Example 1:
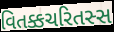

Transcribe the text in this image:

વિતક્કચરિતસ્સ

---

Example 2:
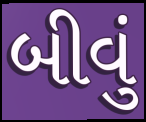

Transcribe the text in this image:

બીવું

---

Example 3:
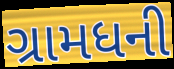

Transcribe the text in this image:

ગ્રામધની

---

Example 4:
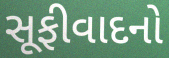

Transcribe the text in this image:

સૂફીવાદનો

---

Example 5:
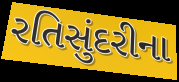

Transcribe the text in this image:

રતિસુંદરીના